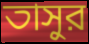
তাসুর